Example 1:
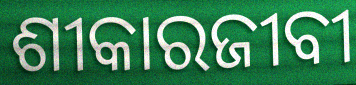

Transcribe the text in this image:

ଶୀକାରଜୀବୀ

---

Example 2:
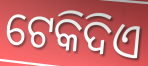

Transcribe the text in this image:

ଟେକିଦିଏ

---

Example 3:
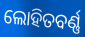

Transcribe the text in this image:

ଲୋହିତବର୍ଣ୍ଣ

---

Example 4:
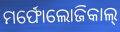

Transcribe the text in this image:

ମର୍ଫୋଲୋଜିକାଲ୍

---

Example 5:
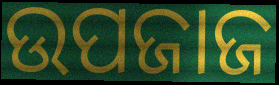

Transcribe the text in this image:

ଉପଜାଜ